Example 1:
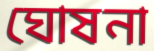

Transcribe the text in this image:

ঘোষনা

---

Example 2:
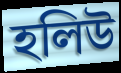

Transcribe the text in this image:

হলিউ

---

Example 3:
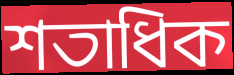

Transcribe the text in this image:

শতাধিক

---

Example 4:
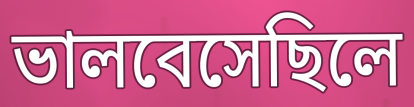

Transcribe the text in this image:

ভালবেসেছিলে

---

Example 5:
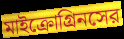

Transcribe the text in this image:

মাইক্রোগ্রিনসের